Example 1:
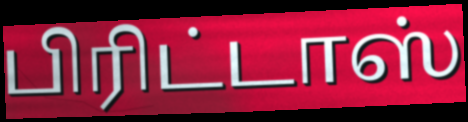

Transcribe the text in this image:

பிரிட்டாஸ்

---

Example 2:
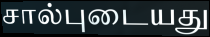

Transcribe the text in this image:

சால்புடையது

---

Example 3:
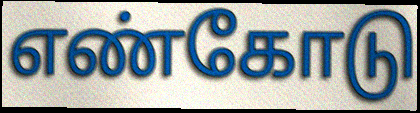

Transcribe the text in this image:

எண்கோடு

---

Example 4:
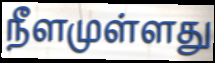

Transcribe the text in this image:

நீளமுள்ளது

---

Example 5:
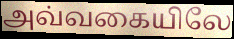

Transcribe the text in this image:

அவ்வகையிலே